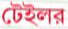
টেইলর